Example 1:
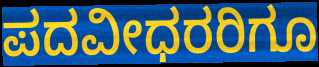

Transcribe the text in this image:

ಪದವೀಧರರಿಗೂ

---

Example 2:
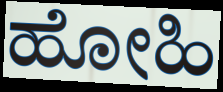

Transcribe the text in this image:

ಹೋಹಿ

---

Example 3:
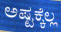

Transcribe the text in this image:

ಅಷ್ಟಕ್ಕೆಲ್ಲ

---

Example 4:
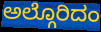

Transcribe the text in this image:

ಅಲ್ಗೊರಿದಂ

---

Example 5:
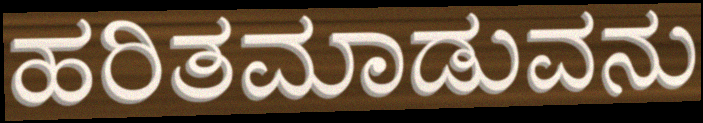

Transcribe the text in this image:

ಹರಿತಮಾಡುವನು